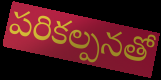
పరికల్పనతో